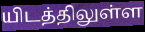
யிடத்திலுள்ள